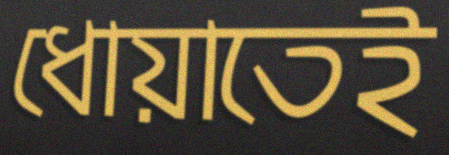
ধোয়াতেই